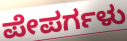
ಪೇಪರ್ಗಳು